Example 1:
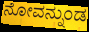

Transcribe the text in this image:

ನೋವನ್ನುಂಡ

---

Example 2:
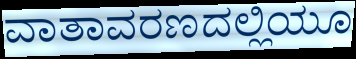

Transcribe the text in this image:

ವಾತಾವರಣದಲ್ಲಿಯೂ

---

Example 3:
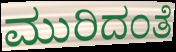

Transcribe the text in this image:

ಮುರಿದಂತೆ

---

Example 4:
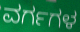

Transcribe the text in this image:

ವರ್ಗಗಳ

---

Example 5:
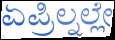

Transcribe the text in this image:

ಏಪ್ರಿಲ್ನಲ್ಲೇ